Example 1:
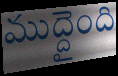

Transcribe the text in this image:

ముద్దైంది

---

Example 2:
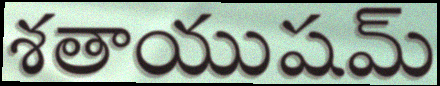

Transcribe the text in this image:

శతాయుషమ్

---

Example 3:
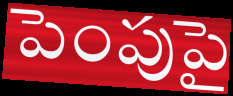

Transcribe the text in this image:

పెంపుపై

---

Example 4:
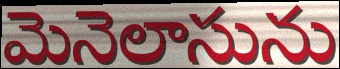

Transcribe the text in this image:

మెనెలాసును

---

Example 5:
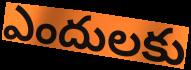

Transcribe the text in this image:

ఎందులకు